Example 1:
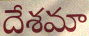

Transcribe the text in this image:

దేశమా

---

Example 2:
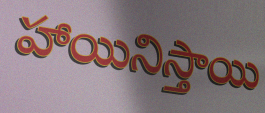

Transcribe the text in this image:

హాయినిస్తాయి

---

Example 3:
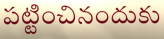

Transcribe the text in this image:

పట్టించినందుకు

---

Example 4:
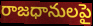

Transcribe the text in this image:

రాజధానులపై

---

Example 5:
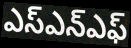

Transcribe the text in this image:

ఎస్ఎన్ఎఫ్